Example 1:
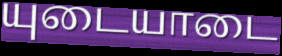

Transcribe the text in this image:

யுடையாடை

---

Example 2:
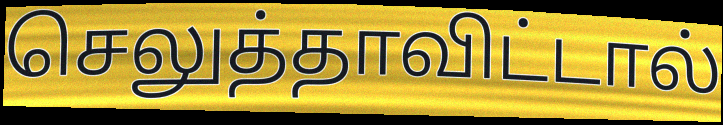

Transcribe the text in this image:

செலுத்தாவிட்டால்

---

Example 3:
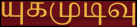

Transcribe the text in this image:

யுகமுடிவு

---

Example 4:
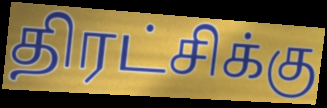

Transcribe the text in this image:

திரட்சிக்கு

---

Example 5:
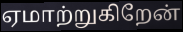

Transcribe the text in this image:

ஏமாற்றுகிறேன்